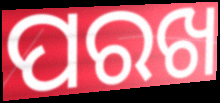
ପରଖ